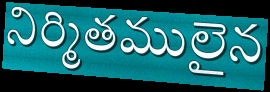
నిర్మితములైన